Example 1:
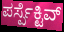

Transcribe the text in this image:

ಪರ್ಸ್ಪೆಕ್ಟಿವ್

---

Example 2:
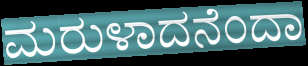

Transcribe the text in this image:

ಮರುಳಾದನೆಂದಾ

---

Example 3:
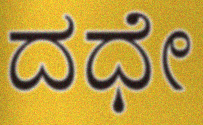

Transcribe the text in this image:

ದಧೇ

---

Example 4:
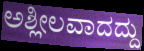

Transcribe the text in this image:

ಅಶ್ಲೀಲವಾದದ್ದು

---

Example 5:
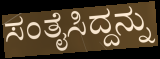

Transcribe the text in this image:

ಸಂತೈಸಿದ್ದನ್ನು